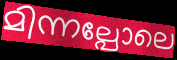
മിന്നല്പോലെ